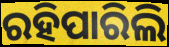
ରହିପାରିଲି